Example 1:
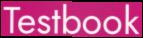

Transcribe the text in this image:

Testbook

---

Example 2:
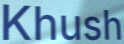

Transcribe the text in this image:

Khush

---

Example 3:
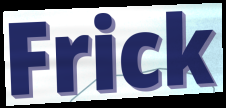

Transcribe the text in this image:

Frick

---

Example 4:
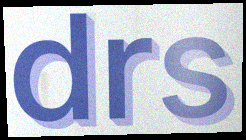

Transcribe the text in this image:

drs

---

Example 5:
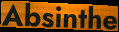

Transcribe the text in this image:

Absinthe